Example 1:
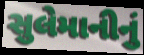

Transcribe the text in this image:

સુલેમાનીનું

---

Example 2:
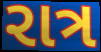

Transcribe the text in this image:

રાત્ર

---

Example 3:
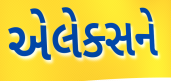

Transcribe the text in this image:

એલેક્સને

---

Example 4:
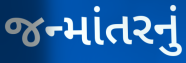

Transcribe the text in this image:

જન્માંતરનું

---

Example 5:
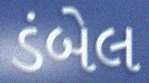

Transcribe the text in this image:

ડંબેલ